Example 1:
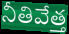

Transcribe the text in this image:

నీతివేత్త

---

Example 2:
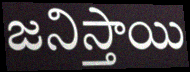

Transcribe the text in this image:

జనిస్తాయి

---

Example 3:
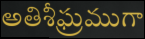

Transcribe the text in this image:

అతిశీఘ్రముగా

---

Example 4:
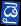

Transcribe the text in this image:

డై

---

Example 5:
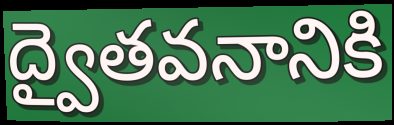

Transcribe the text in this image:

ద్వైతవనానికి